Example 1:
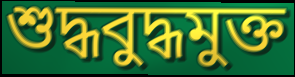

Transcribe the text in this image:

শুদ্ধবুদ্ধমুক্ত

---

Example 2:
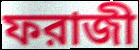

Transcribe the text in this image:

ফরাজী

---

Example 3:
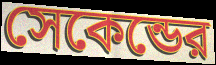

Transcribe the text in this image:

সেকেন্ডের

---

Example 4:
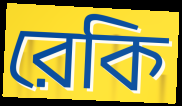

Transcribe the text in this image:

রেকি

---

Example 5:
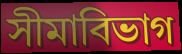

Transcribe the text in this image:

সীমাবিভাগ